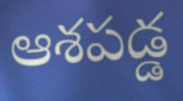
ఆశపడ్డ